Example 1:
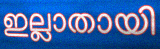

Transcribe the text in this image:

ഇല്ലാതായി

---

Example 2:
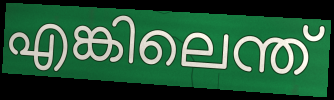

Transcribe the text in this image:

എങ്കിലെന്ത്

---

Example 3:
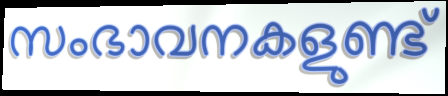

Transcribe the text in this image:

സംഭാവനകളുണ്ട്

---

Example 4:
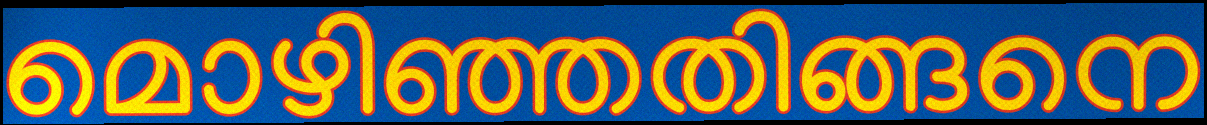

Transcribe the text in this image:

മൊഴിഞ്ഞതിങ്ങനെ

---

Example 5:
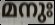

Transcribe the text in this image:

മനുഃ